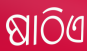
ଷାଠିଏ